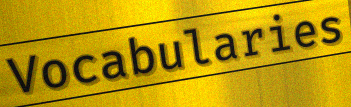
Vocabularies